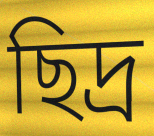
ছিদ্ৰ